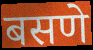
बसणे